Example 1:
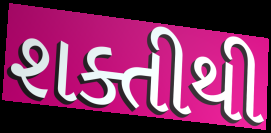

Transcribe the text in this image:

શક્તીથી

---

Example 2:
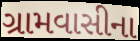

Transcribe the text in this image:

ગ્રામવાસીના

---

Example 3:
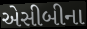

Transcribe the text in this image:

એસીબીના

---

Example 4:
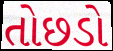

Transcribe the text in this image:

તોછડો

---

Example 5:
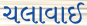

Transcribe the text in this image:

ચલાવાઈ